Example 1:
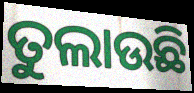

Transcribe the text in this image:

ତୁଲାଉଛି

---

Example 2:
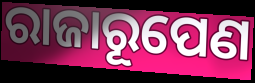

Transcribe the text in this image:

ରାଜାରୂପେଣ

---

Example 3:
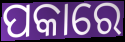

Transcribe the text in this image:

ପକାରେ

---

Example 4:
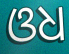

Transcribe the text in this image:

ଓଧ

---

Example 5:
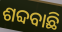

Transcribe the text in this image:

ଶବ୍ଦବାଛି